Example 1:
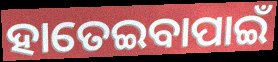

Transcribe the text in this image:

ହାତେଇବାପାଇଁ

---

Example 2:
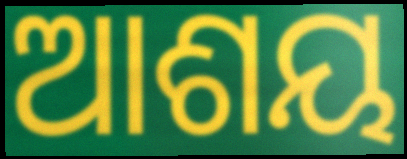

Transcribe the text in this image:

ଆଶୟ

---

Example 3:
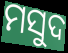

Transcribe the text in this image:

ମସୁଦ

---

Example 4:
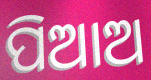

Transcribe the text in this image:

ପିଆଅ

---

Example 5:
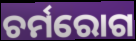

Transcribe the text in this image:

ଚର୍ମରୋଗ